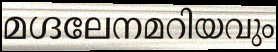
മഗ്ദലേനമറിയവും